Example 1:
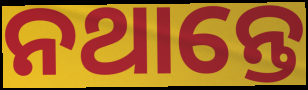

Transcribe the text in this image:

ନଥାନ୍ତେ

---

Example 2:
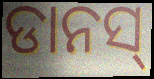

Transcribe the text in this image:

ଡାନସ୍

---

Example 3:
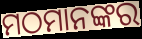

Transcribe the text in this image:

ମଠମାନଙ୍କର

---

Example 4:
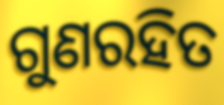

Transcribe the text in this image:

ଗୁଣରହିତ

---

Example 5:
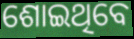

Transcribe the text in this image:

ଶୋଇଥିବେ